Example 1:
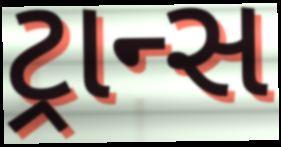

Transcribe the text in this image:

ટ્રાન્સ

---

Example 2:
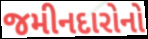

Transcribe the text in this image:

જમીનદારોનો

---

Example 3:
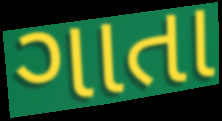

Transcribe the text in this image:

ગાતા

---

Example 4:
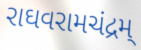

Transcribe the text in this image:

રાઘવરામચંદ્રમ્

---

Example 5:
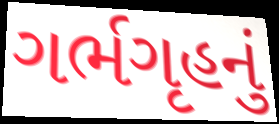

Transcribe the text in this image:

ગર્ભગૃહનું